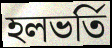
হলভর্তি